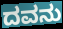
ದವನು